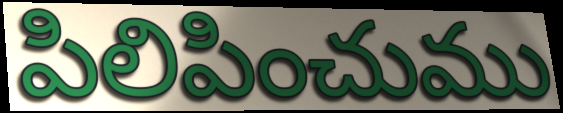
పిలిపించుము